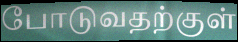
போடுவதற்குள்